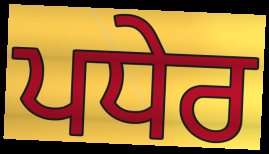
ਪਧੇਰ